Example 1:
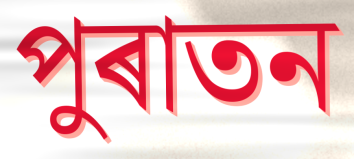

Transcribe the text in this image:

পুৰাতন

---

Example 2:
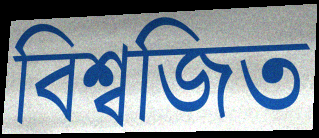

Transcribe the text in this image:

বিশ্বজিত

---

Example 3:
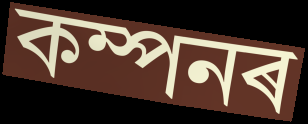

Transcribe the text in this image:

কম্পনৰ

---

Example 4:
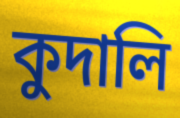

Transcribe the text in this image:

কুদালি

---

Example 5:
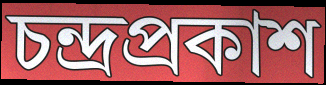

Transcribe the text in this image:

চন্দ্ৰপ্ৰকাশ